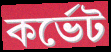
কর্ভেট